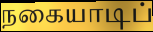
நகையாடிப்